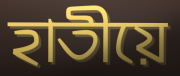
হাতীয়ে